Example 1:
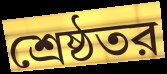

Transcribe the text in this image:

শ্রেষ্ঠতর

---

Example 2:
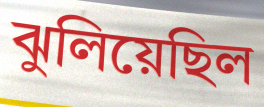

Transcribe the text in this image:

ঝুলিয়েছিল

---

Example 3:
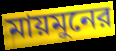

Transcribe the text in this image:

মায়মুনের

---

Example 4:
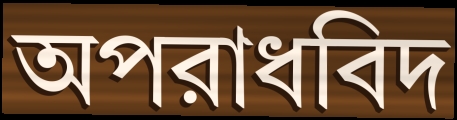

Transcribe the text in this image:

অপরাধবিদ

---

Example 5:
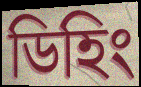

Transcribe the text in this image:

ডিহিং